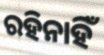
ରହିନାହିଁ